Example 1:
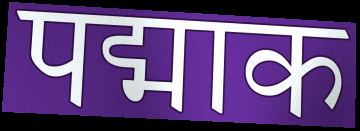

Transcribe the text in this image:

पद्माक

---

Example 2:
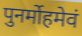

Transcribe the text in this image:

पुनर्मोहमेवं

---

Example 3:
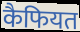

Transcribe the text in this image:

कैफियत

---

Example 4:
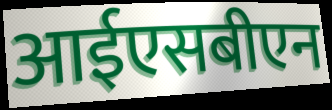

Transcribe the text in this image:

आईएसबीएन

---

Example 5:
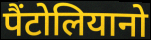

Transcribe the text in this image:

पैंटोलियानो